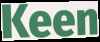
Keen